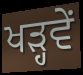
ਖੜ੍ਹਵੇਂ